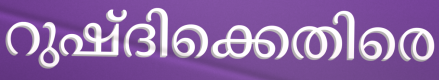
റുഷ്ദിക്കെതിരെ